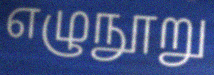
எழுநூறு